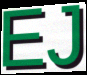
EJ